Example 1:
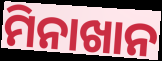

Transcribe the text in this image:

ମିନାଖାନ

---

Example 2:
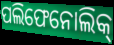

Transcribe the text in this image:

ପଲିଫେନୋଲିକ୍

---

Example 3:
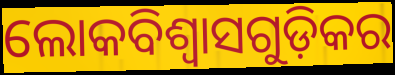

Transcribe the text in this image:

ଲୋକବିଶ୍ଵାସଗୁଡ଼ିକର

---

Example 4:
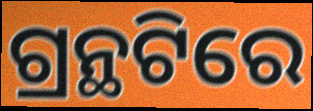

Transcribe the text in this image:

ଗ୍ରନ୍ଥଟିରେ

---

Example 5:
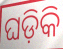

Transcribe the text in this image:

ଘଡ଼ିକି